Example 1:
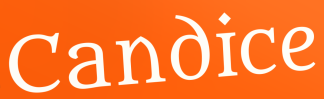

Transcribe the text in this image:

Candice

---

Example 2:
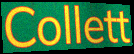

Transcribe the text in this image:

Collett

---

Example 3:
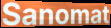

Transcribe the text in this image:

Sanomat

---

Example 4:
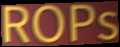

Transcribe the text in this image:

ROPs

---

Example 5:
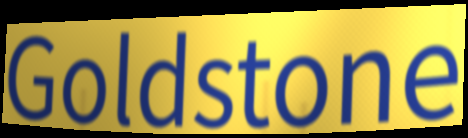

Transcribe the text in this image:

Goldstone